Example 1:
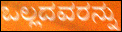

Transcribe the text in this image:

ಒಲ್ಲದವರನ್ನು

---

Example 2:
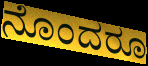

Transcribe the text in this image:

ನೊಂದರೂ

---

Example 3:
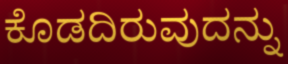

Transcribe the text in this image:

ಕೊಡದಿರುವುದನ್ನು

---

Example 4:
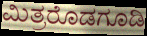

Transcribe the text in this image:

ಮಿತ್ರರೊಡಗೂಡಿ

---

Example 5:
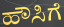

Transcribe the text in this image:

ಹೌಸಿಗೆ